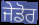
ਜੇਡੋਰ